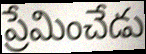
ప్రేమించేడు